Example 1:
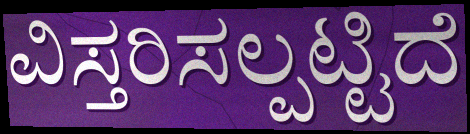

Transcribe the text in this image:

ವಿಸ್ತರಿಸಲ್ಪಟ್ಟಿದೆ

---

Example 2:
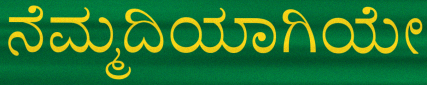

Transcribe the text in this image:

ನೆಮ್ಮದಿಯಾಗಿಯೇ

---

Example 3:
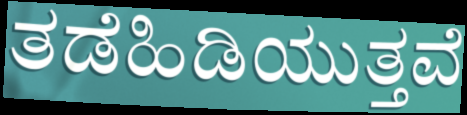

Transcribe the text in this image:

ತಡೆಹಿಡಿಯುತ್ತವೆ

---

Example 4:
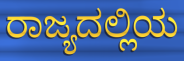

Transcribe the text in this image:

ರಾಜ್ಯದಲ್ಲಿಯ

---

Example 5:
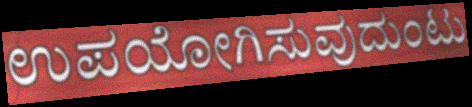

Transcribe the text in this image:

ಉಪಯೋಗಿಸುವುದುಂಟು